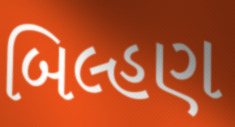
બિલ્હણ